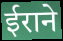
ईराने